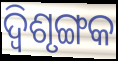
ଦ୍ବିଶୃଙ୍ଗକ